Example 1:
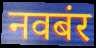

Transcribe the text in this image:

नवबंर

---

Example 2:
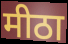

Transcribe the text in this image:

मीठा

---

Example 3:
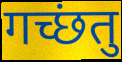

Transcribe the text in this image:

गच्छंतु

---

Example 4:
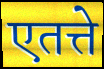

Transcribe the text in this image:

एतत्ते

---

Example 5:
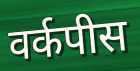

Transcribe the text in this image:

वर्कपीस